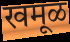
खमूळ